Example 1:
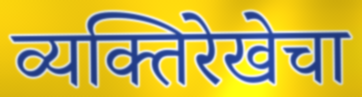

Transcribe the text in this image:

व्यक्तिरेखेचा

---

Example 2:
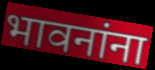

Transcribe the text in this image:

भावनांना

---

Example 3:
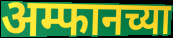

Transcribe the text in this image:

अम्फानच्या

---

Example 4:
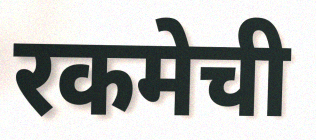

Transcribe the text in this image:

रकमेची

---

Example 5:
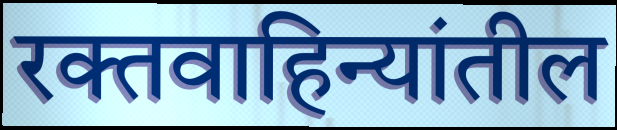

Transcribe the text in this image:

रक्तवाहिन्यांतील